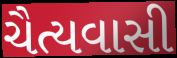
ચૈત્યવાસી